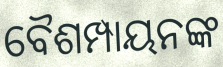
ବୈଶମ୍ପାୟନଙ୍କ